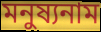
মনুষ্যনাম